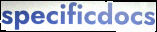
specificdocs